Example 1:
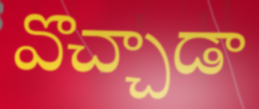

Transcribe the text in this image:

వొచ్చాడా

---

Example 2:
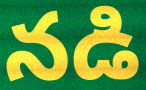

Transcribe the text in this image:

నడి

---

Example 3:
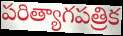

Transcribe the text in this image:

పరిత్యాగపత్రిక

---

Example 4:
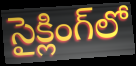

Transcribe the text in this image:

సైక్లింగ్‌లో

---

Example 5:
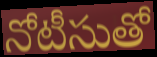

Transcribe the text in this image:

నోటీసుతో